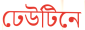
ঢেউটিনে